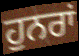
ਹੁਨਰਾਂ